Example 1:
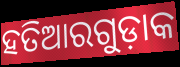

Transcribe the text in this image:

ହତିଆରଗୁଡ଼ାକ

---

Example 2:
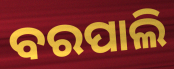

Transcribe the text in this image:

ବରପାଲି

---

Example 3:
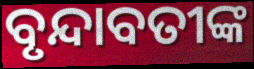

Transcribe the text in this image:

ବୃନ୍ଦାବତୀଙ୍କ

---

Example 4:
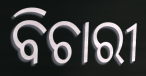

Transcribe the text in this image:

ବିଚାରୀ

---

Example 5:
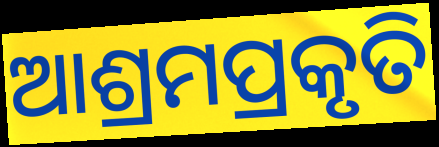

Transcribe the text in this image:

ଆଶ୍ରମପ୍ରକୃତି